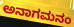
ಅನಾಗಮನಂ